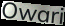
Owari